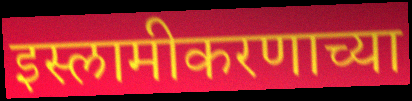
इस्लामीकरणाच्या